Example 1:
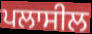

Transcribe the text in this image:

ਪਲਾਸੀਲ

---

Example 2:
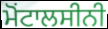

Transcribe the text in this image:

ਮੋਂਟਾਲਸੀਨੀ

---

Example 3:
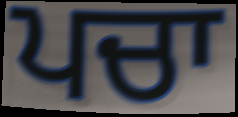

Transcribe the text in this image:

ਪਚਾ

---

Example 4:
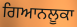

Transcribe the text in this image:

ਗਿਆਨਲੂਕਾ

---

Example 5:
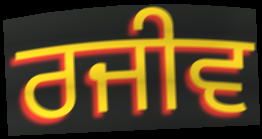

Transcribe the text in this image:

ਰਜੀਵ